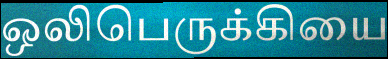
ஒலிபெருக்கியை